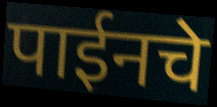
पाईनचे